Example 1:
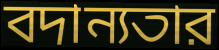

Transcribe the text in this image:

বদান্যতার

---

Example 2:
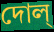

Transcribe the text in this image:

দোল্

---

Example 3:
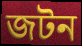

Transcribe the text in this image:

জটন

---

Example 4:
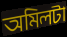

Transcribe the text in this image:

অমিলটা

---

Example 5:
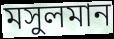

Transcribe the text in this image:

মসুলমান